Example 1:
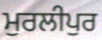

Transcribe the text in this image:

ਮੁਰਲੀਪੁਰ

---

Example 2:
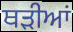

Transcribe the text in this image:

ਥੜੀਆਂ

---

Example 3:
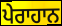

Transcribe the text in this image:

ਪੇਰਾਹਾਨ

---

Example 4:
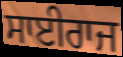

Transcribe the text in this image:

ਸਾਈਰਾਜ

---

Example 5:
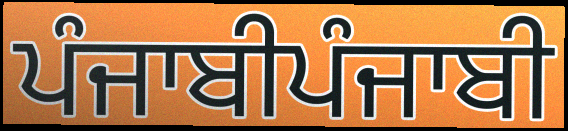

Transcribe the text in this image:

ਪੰਜਾਬੀਪੰਜਾਬੀ